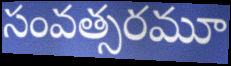
సంవత్సరమూ